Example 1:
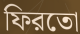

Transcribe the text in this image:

ফিরতো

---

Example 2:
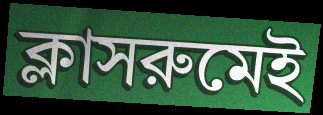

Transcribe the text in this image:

ক্লাসরুমেই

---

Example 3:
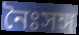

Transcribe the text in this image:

নৈঃসঙ্গ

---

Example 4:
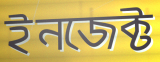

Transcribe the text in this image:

ইনজেক্ট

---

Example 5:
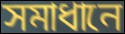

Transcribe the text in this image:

সমাধানে